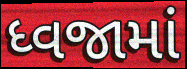
ધ્વજામાં